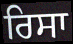
ਰਿਸਾ